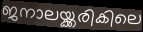
ജനാലയ്ക്കരികിലെ